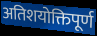
अतिशयोक्तिपूर्ण